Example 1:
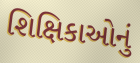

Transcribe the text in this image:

શિક્ષિકાઓનું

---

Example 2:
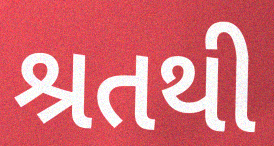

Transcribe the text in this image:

શ્રતથી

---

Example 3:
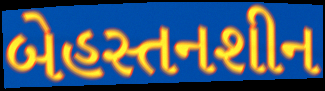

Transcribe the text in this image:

બેહસ્તનશીન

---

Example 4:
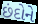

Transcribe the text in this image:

છંદોને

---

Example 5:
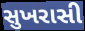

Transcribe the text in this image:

સુખરાસી